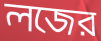
লজের